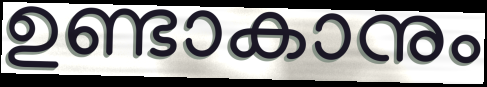
ഉണ്ടാകാനും